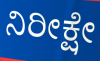
ನಿರೀಕ್ಷೇ